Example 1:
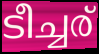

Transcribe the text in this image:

ടീച്ചര്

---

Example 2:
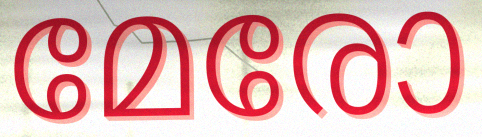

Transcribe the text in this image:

മേരോ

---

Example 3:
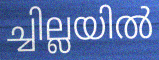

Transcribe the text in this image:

ച്ചില്ലയിൽ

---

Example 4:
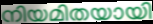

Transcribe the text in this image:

നിയമിതയായി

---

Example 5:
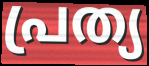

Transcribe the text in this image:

പ്രത്യ